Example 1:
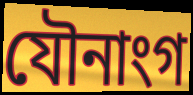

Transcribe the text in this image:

যৌনাংগ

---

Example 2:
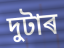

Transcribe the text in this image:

দুটাৰ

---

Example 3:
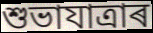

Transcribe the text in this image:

শুভাযাত্ৰাৰ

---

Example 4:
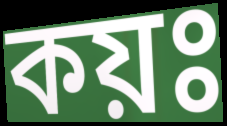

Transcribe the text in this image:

কয়ঃ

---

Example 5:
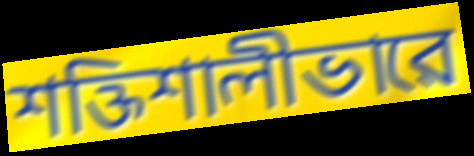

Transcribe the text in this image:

শক্তিশালীভাৱে